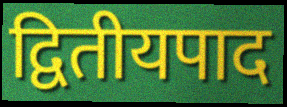
द्वितीयपाद